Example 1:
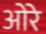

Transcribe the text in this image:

ओरे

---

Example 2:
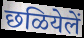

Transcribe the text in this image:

छळियेलें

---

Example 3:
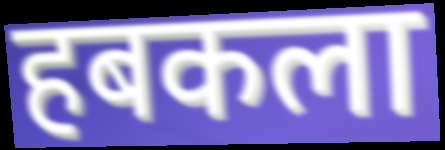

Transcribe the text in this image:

हबकला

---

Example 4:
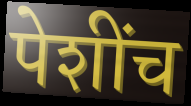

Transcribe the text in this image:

पेशींच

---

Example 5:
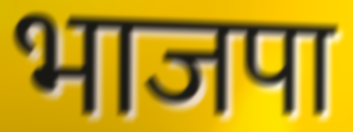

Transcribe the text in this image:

भाजपा